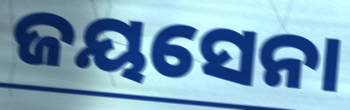
ଜୟସେନା